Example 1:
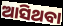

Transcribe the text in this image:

ଆସିଥବା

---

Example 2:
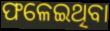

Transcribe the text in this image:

ଫଳେଇଥିବା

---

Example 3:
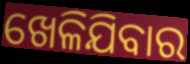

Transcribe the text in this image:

ଖେଳିଯିବାର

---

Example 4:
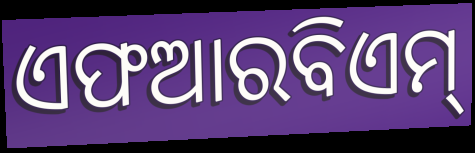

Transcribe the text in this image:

ଏଫଆରବିଏମ୍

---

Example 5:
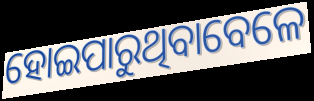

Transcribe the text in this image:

ହୋଇପାରୁଥିବାବେଳେ